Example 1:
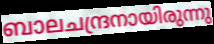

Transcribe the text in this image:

ബാലചന്ദ്രനായിരുന്നു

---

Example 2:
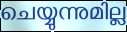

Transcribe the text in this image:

ചെയ്യുന്നുമില്ല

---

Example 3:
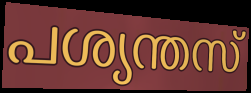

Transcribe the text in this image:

പശ്യന്തസ്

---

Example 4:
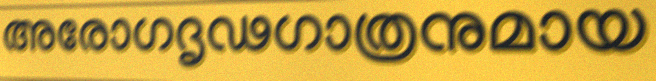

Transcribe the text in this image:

അരോഗദൃഢഗാത്രനുമായ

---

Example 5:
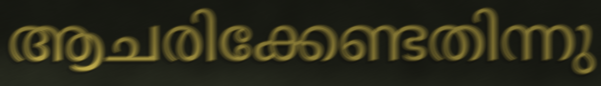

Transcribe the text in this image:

ആചരിക്കേണ്ടതിന്നു